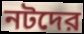
নটদের